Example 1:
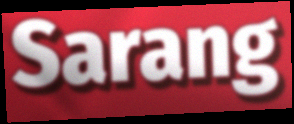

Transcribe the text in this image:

Sarang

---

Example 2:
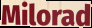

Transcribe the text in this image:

Milorad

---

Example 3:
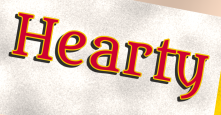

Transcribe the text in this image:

Hearty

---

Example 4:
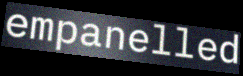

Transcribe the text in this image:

empanelled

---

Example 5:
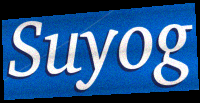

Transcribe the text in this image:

Suyog